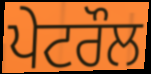
ਪੇਟਰੌਲ